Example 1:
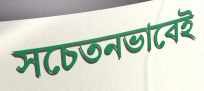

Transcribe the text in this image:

সচেতনভাবেই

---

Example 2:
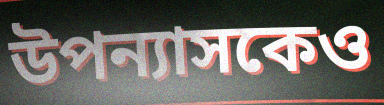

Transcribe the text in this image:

উপন্যাসকেও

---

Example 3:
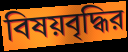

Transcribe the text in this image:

বিষয়বৃদ্ধির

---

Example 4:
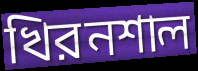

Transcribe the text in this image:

খিরনশাল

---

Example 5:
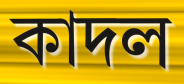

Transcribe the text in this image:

কাদল